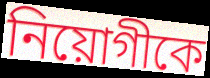
নিয়োগীকে